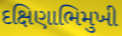
દક્ષિણાભિમુખી